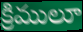
క్రిములూ